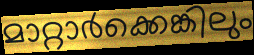
മാറ്റാർക്കെങ്കിലും